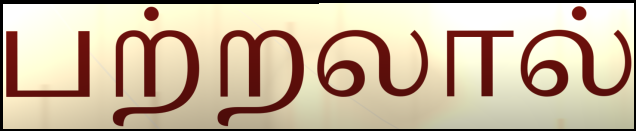
பற்றலால்